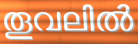
തൂവലിൽ